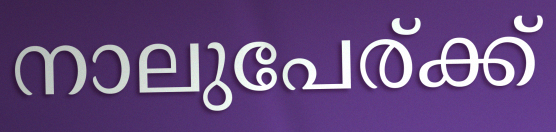
നാലുപേര്ക്ക്